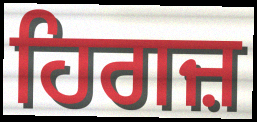
ਹਿਗਜ਼